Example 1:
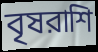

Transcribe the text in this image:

বৃষরাশি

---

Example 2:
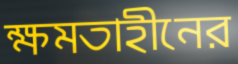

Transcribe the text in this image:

ক্ষমতাহীনের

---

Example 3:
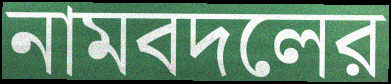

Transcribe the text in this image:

নামবদলের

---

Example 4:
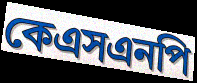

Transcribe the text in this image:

কেএসএনপি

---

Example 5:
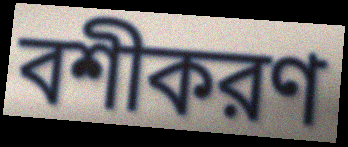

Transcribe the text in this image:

বশীকরণ